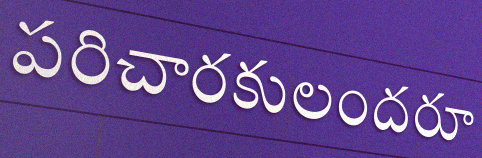
పరిచారకులందరూ